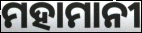
ମହାମାନୀ